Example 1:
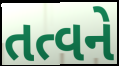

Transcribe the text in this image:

તત્વને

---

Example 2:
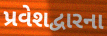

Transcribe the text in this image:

પ્રવેશદ્વારના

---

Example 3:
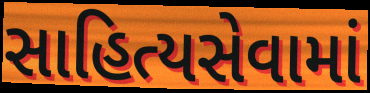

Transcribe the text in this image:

સાહિત્યસેવામાં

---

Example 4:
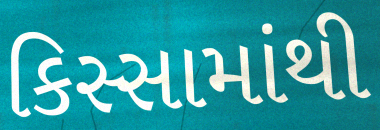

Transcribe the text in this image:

કિસ્સામાંથી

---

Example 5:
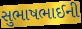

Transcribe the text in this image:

સુભાષભાઈની